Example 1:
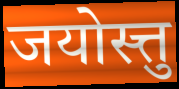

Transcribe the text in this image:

जयोस्त्तु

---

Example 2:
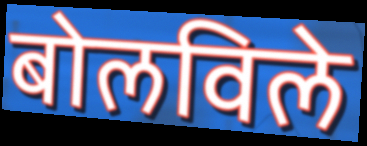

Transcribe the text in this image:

बोलविले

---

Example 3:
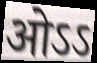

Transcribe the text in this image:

ओऽऽ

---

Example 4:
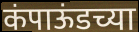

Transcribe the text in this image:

कंपाऊंडच्या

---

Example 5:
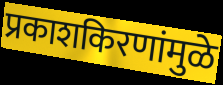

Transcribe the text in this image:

प्रकाशकिरणांमुळे